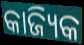
କାଜ୍ୟିକ